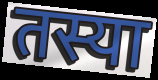
तस्या